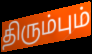
திரும்பும்